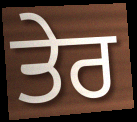
ਤੇਰ